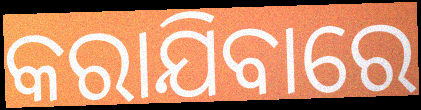
କରାଯିବାରେ